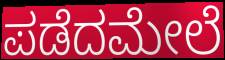
ಪಡೆದಮೇಲೆ